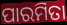
ପାରମିତା